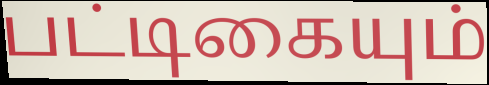
பட்டிகையும்